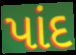
પાંદ